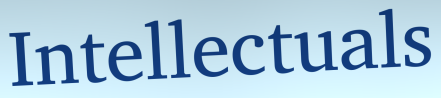
Intellectuals